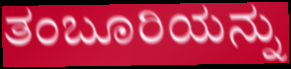
ತಂಬೂರಿಯನ್ನು